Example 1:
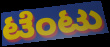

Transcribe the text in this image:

ಟೆಂಟು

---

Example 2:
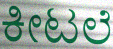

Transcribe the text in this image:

ಕೀಟಲೆ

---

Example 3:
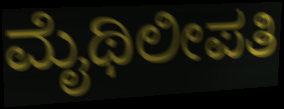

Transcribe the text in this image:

ಮೈಥಿಲೀಪತಿ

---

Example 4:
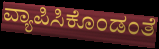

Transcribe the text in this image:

ವ್ಯಾಪಿಸಿಕೊಂಡಂತೆ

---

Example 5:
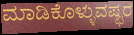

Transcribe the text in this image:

ಮಾಡಿಕೊಳ್ಳುವಷ್ಟರ